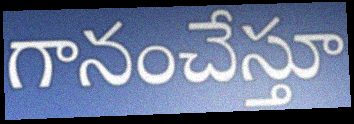
గానంచేస్తూ